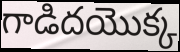
గాడిదయొక్క